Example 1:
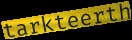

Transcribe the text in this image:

tarkteerth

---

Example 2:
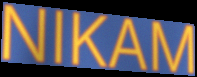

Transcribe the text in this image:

NIKAM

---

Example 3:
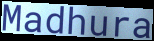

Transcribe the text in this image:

Madhura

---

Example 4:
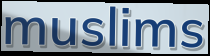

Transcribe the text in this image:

muslims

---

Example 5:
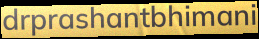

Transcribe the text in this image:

drprashantbhimani